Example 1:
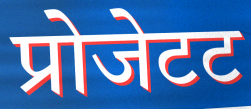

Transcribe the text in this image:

प्रोजेटट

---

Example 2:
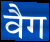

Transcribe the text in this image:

वैग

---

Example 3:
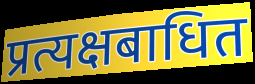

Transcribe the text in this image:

प्रत्यक्षबाधित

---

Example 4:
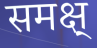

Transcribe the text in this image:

समक्ष्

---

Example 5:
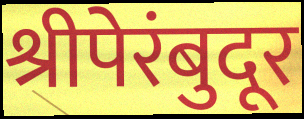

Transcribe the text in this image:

श्रीपेरंबुदूर